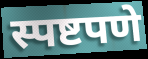
स्पष्टपणे